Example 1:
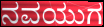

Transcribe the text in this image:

ನವಯುಗ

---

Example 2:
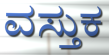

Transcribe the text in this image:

ವಸ್ತುಕ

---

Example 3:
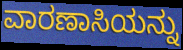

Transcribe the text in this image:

ವಾರಣಾಸಿಯನ್ನು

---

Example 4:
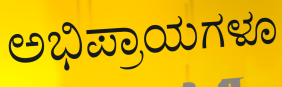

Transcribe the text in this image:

ಅಭಿಪ್ರಾಯಗಳೂ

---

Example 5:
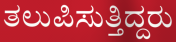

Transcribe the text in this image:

ತಲುಪಿಸುತ್ತಿದ್ದರು